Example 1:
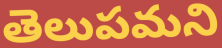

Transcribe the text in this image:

తెలుపమని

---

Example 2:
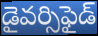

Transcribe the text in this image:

డైవర్సిఫైడ్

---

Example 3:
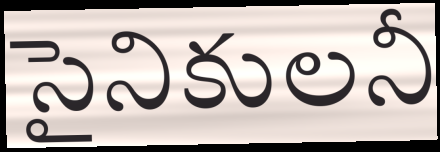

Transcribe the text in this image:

సైనికులనీ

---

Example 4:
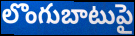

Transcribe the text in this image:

లొంగుబాటుపై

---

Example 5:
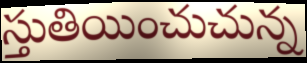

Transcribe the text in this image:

స్తుతియించుచున్న